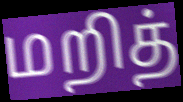
மறித்